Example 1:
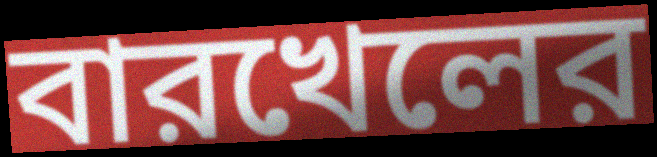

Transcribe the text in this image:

বারখেলের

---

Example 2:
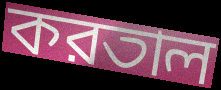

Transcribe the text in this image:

করতাল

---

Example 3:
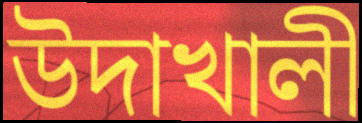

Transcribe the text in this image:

উদাখালী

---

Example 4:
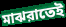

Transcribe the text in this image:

মাঝরাতেই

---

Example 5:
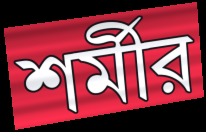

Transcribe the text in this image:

শর্মীর